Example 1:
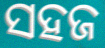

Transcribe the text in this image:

ସହଜ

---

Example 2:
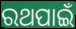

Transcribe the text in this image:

ରଥପାଇଁ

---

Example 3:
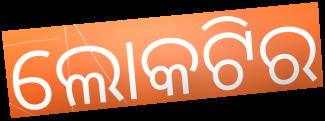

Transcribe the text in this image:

ଲୋକଟିର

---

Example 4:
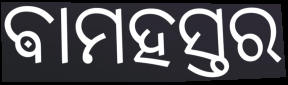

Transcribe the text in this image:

ଵାମହସ୍ତର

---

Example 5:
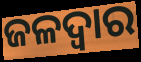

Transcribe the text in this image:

ଜଳଦ୍ୱାର